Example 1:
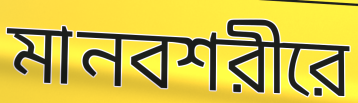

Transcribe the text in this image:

মানবশরীরে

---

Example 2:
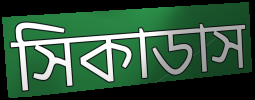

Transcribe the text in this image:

সিকাডাস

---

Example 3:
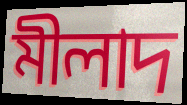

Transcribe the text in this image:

মীলাদ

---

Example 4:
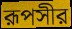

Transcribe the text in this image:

রূপসীর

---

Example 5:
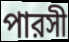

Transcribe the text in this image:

পারসী